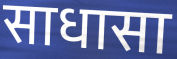
साधासा